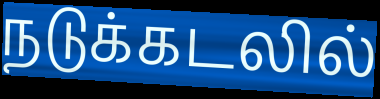
நடுக்கடலில்